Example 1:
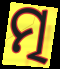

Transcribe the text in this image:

ତ୍ମ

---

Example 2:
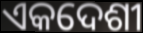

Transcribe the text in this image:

ଏକଦେଶୀ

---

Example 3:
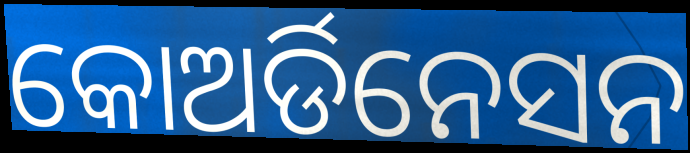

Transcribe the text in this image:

କୋଅର୍ଡିନେସନ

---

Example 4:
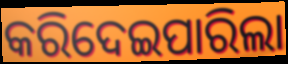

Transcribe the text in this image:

କରିଦେଇପାରିଲା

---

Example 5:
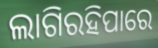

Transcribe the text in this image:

ଲାଗିରହିପାରେ